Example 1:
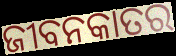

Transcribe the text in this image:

ଜୀବନକାତର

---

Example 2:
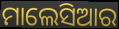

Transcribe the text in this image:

ମାଲେସିଆର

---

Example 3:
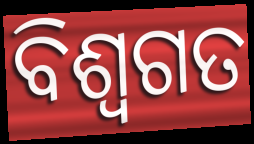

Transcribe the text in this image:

ବିଶ୍ୱଗତ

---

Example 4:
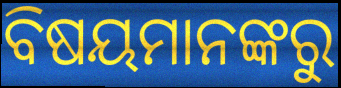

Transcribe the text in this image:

ବିଷୟମାନଙ୍କରୁ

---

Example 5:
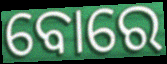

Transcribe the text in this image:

ବୋରେ